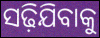
ସଢ଼ିଯିବାକୁ